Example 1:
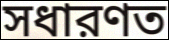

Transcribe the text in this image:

সধারণত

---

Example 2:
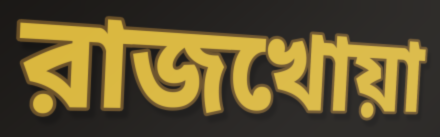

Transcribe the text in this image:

রাজখোয়া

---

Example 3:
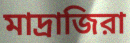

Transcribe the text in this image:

মাদ্রাজিরা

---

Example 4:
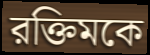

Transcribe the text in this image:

রক্তিমকে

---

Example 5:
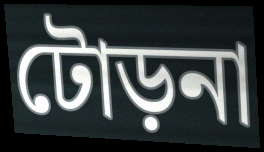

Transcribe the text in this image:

টোড়না